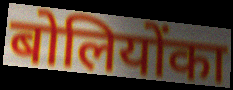
बोलियोंका